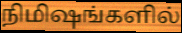
நிமிஷங்களில்